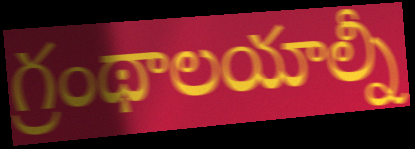
గ్రంథాలయాల్నీ